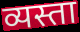
व्यस्ता